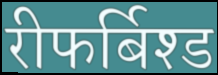
रीफर्बिश्ड